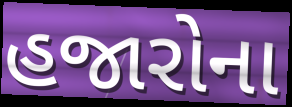
હજારોના